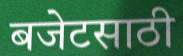
बजेटसाठी